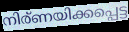
നിര്ണയിക്കപ്പെട്ട